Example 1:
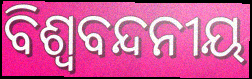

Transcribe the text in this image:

ବିଶ୍ୱବନ୍ଦନୀୟ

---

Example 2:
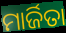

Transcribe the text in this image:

ମାର୍ଜିତା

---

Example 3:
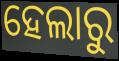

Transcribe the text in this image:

ହେଲାରୁ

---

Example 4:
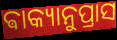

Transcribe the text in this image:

ଵାକ୍ୟାନୁପ୍ରାସ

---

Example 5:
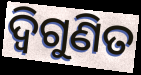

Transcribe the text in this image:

ଦ୍ଵିଗୁଣିତ